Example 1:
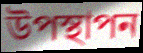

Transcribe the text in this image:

উপস্থাপন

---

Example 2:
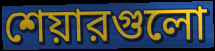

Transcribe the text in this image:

শেয়ারগুলো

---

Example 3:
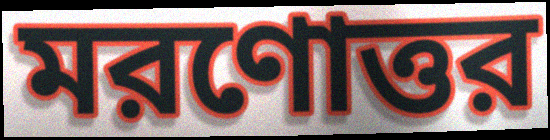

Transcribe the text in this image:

মরণোত্তর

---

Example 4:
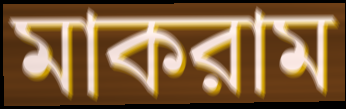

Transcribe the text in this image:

মাকরাম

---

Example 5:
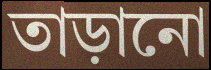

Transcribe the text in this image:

তাড়ানো